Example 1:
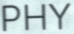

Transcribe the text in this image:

PHY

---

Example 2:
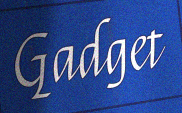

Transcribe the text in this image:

Gadget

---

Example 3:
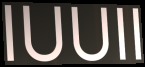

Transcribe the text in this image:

IUUII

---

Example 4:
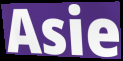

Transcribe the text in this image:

Asie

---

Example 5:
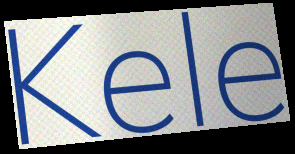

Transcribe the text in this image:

Kele